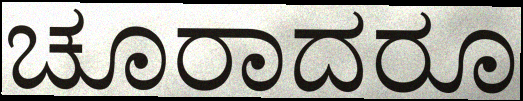
ಚೂರಾದರೂ